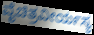
ವೈಚಿತ್ರವೀರ್ಯಸ್ಯ